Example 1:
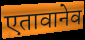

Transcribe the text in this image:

एतावानेव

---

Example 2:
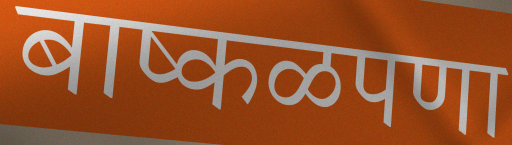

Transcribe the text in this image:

बाष्कळपणा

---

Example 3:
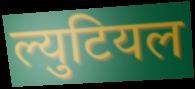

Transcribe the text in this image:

ल्युटियल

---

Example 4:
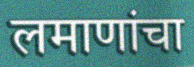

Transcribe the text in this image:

लमाणांचा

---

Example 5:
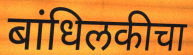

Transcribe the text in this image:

बांधिलकीचा